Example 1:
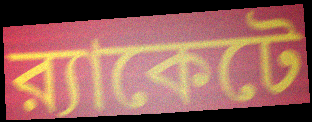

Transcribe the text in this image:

র‍্যাকেটে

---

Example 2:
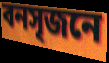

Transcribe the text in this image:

বনসৃজনে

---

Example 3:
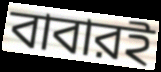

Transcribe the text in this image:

বাবারই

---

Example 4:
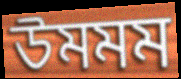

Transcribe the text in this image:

উমমম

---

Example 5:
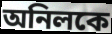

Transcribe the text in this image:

অনিলকে